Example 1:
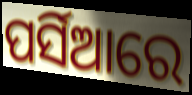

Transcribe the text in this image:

ପର୍ସିଆରେ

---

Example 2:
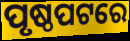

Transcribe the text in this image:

ପୃଷ୍ଠପଟରେ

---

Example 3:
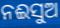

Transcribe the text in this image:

ନଈସୁଅ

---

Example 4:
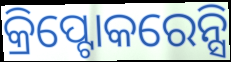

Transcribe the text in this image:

କ୍ରିପ୍ଟୋକରେନ୍ସି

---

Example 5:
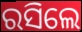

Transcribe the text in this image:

ରସିଲେ